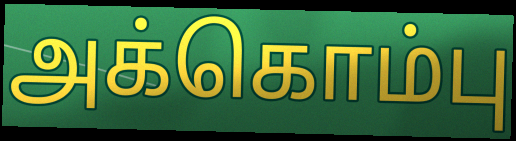
அக்கொம்பு